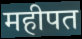
महीपत